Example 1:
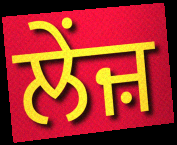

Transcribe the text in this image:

ਲੇਂਜ਼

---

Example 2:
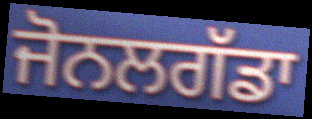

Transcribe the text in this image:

ਜੋਨਲਗੱਡਾ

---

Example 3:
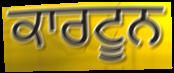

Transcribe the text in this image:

ਕਾਰਟੂਨ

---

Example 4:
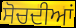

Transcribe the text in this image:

ਸੋਚਦੀਆਂ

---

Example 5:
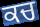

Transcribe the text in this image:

ਕਚ